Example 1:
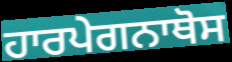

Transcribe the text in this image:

ਹਾਰਪੇਗਨਾਥੋਸ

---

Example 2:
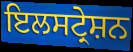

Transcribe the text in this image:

ਇਲਸਟ੍ਰੇਸ਼ਨ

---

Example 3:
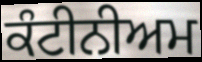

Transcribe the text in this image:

ਕੰਟੀਨੀਅਮ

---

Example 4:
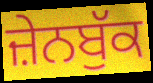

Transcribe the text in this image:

ਜ਼ੇਨਬੁੱਕ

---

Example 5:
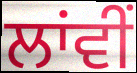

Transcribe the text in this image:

ਲਾਂਵੀਂ